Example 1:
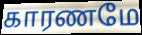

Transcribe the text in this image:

காரணமே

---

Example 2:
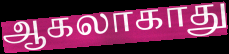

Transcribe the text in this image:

ஆகலாகாது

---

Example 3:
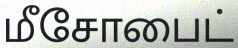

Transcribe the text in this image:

மீசோபைட்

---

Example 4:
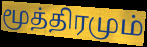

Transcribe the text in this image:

மூத்திரமும்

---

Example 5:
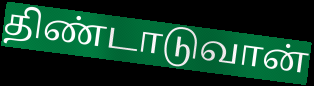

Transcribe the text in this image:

திண்டாடுவான்